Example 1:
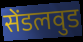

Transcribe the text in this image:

सेंडलवुड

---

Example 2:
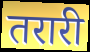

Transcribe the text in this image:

तरारी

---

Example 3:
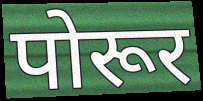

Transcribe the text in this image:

पोरूर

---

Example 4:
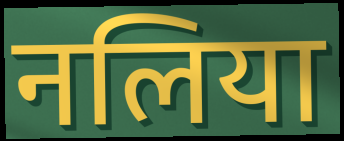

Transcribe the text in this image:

नलिया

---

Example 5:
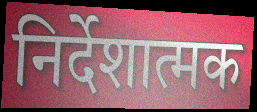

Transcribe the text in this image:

निर्देशात्मक